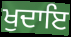
ਖੁਦਾਇ